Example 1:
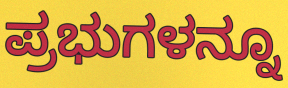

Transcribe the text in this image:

ಪ್ರಭುಗಳನ್ನೂ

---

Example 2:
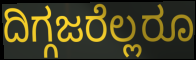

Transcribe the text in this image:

ದಿಗ್ಗಜರೆಲ್ಲರೂ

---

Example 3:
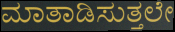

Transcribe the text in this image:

ಮಾತಾಡಿಸುತ್ತಲೇ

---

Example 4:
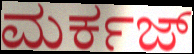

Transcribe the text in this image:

ಮರ್ಕಜ್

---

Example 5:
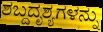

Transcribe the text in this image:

ಶಬ್ದದೃಶ್ಯಗಳನ್ನು